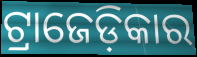
ଟ୍ରାଜେଡ଼ିକାର